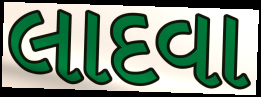
લાદવા